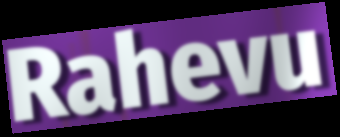
Rahevu